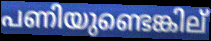
പണിയുണ്ടെങ്കില്